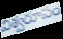
విశ్వరూపం